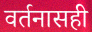
वर्तनासही